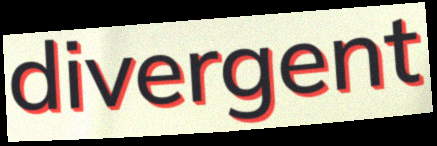
divergent